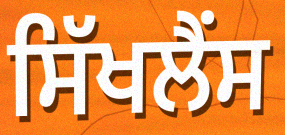
ਸਿੱਖਲੈਂਸ